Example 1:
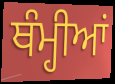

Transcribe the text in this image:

ਥੰਮ੍ਹੀਆਂ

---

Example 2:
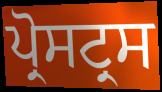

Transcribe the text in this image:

ਪ੍ਰੋਸਟ੍ਰਸ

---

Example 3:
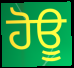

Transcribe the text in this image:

ਹੋਊ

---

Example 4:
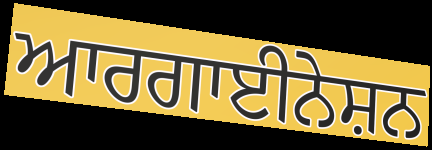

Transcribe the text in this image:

ਆਰਗਾਈਨੇਸ਼ਨ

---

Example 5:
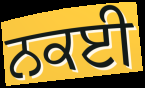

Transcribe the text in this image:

ਨਕਈ